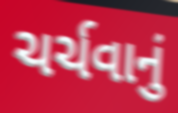
ચર્ચવાનું